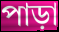
পাড়া